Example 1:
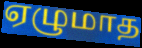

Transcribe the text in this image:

ஏழுமாத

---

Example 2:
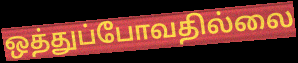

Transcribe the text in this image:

ஒத்துப்போவதில்லை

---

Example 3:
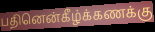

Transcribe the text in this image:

பதினென்கீழ்க்கணக்கு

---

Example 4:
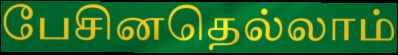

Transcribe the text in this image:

பேசினதெல்லாம்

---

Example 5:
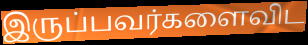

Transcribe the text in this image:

இருப்பவர்களைவிட